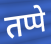
तप्पे